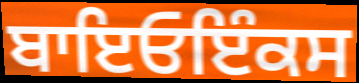
ਬਾਇਓਇੰਕਸ